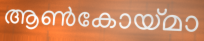
ആൺകോയ്മാ